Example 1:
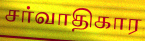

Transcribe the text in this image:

சர்வாதிகார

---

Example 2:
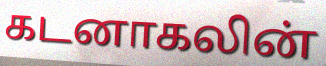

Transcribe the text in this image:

கடனாகலின்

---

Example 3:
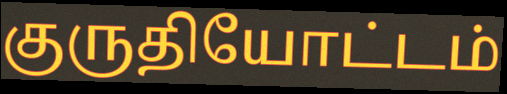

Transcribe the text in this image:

குருதியோட்டம்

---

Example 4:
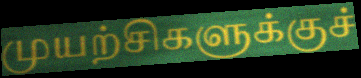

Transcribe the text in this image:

முயற்சிகளுக்குச்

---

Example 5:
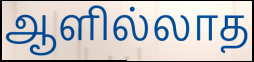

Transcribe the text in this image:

ஆளில்லாத